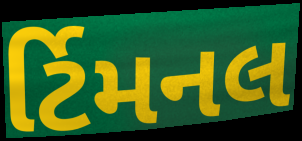
ર્ટિમનલ